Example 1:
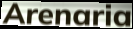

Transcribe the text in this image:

Arenaria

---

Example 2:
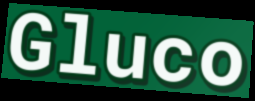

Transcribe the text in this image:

Gluco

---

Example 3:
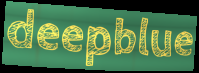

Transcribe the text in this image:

deepblue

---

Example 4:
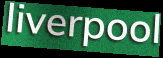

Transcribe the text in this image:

liverpool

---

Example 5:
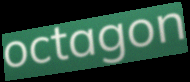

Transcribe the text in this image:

octagon